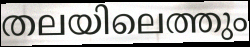
തലയിലെത്തും